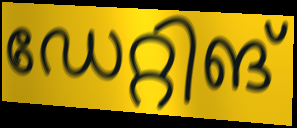
ഡേറ്റിങ്